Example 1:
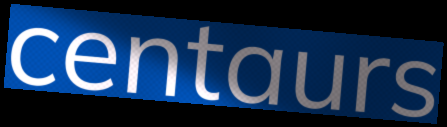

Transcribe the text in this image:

centaurs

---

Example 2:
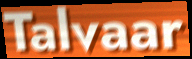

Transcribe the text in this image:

Talvaar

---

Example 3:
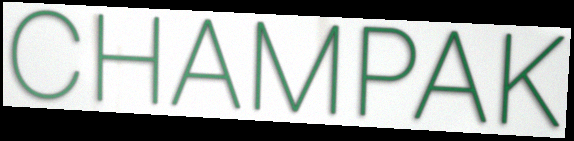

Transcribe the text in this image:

CHAMPAK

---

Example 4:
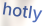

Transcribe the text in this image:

hotly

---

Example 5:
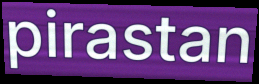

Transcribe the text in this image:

pirastan